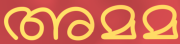
അമമ